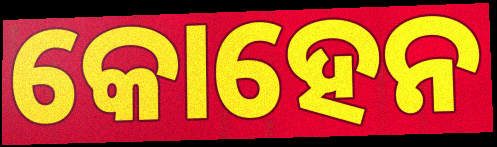
କୋହେନ